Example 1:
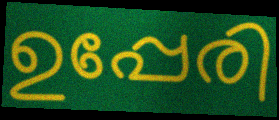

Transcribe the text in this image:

ഉപ്പേരി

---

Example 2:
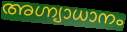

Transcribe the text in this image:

അഗ്ന്യാധാനം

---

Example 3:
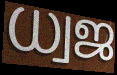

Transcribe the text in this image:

ധ്വജ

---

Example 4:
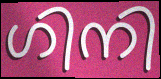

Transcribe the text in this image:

ഗിനി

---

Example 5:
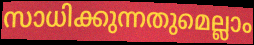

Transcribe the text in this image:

സാധിക്കുന്നതുമെല്ലാം